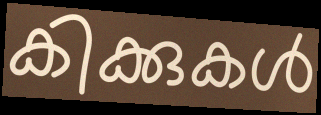
കിക്കുകൾ